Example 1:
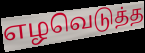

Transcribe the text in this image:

எழவெடுத்த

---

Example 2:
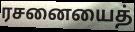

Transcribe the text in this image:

ரசனையைத்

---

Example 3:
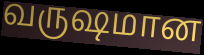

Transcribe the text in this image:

வருஷமான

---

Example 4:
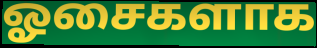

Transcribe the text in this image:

ஓசைகளாக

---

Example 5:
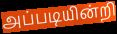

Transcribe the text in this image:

அப்படியின்றி